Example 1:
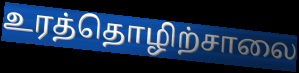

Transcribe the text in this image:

உரத்தொழிற்சாலை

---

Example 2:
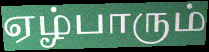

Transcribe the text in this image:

ஏழ்பாரும்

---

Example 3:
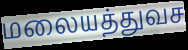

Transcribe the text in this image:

மலையத்துவச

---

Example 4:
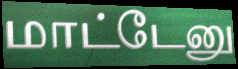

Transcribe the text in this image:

மாட்டேனு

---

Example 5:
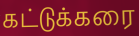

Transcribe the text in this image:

கட்டுக்கரை